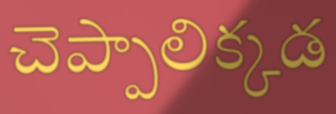
చెప్పాలిక్కడ